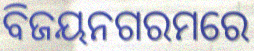
ବିଜୟନଗରମରେ